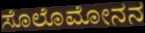
ಸೊಲೊಮೋನನ